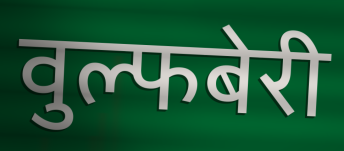
वुल्फबेरी